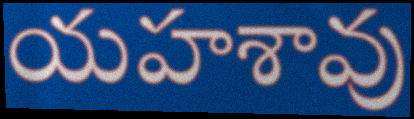
యహశావు